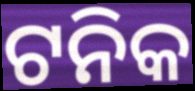
ଟନିକ